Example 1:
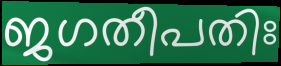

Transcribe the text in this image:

ജഗതീപതിഃ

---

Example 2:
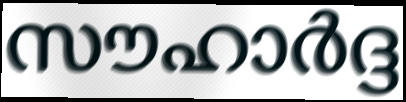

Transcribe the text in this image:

സൗഹാർദ്ദ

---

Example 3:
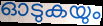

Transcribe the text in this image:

ഓടുകയും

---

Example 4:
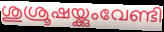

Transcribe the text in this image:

ശുശ്രൂഷയ്ക്കുംവേണ്ടി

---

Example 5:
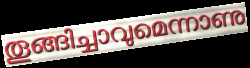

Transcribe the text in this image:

തൂങ്ങിച്ചാവുമെന്നാണു